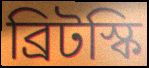
ব্রিটস্কি